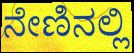
ನೇಣಿನಲ್ಲಿ